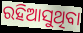
ରହିଆସୁଥିବା